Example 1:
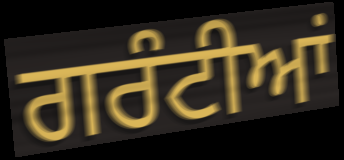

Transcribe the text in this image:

ਗਰੰਟੀਆਂ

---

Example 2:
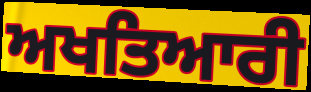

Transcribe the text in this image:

ਅਖਤਿਆਰੀ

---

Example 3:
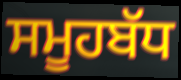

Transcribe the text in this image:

ਸਮੂਹਬੱਧ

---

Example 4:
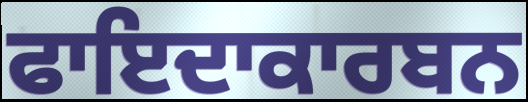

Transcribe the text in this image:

ਫਾਇਦਾਕਾਰਬਨ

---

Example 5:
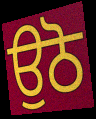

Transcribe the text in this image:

ਉਠੋ